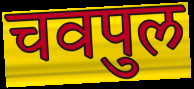
चवपुल